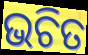
ଭଚିତ